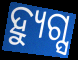
ହ୍ୟୁଗ୍ସ